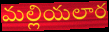
మల్లియలార